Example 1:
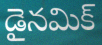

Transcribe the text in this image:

డైనమిక్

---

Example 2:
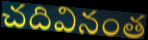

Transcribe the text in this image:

చదివినంత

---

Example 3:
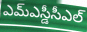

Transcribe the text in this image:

ఎమ్ఎస్డీసీఎల్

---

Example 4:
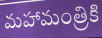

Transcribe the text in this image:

మహామంత్రికి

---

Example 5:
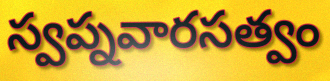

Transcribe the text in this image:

స్వప్నవారసత్వం